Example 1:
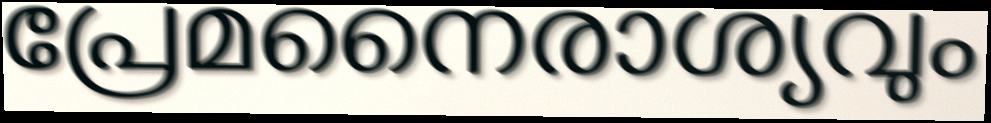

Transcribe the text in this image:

പ്രേമനൈരാശ്യവും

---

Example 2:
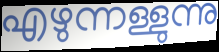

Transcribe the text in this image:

എഴുന്നള്ളുന്നു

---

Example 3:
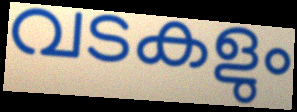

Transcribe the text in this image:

വടകളും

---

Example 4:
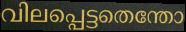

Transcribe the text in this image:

വിലപ്പെട്ടതെന്തോ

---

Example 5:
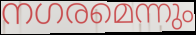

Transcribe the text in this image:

നഗരമെന്നും